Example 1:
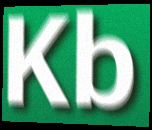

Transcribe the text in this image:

Kb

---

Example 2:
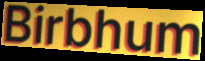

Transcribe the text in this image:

Birbhum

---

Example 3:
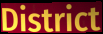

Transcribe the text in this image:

District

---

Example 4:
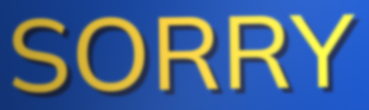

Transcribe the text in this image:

SORRY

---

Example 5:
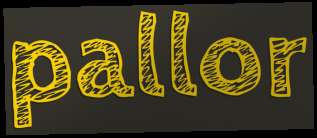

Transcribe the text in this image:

pallor